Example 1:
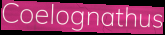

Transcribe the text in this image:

Coelognathus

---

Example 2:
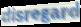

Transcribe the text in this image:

disregard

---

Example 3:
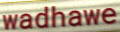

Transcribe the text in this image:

wadhawe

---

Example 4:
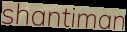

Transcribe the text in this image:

shantiman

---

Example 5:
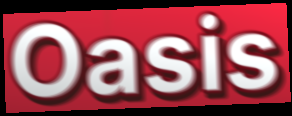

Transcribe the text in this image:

Oasis